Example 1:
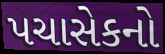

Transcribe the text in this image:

પચાસેકનો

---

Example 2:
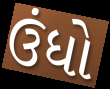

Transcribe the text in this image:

ઉંધો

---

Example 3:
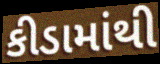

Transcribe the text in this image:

કીડામાંથી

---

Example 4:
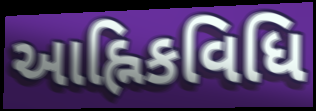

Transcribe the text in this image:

આહ્નિકવિધિ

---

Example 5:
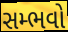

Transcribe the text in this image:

સમ્ભવો